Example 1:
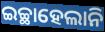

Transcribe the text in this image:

ଇଚ୍ଛାହେଲାନି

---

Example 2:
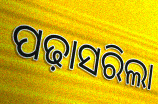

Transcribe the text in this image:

ପଢ଼ାସରିଲା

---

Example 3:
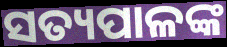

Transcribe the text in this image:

ସତ୍ୟପାଳଙ୍କ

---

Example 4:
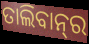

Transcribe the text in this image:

ତାଲିବାନ୍‌ର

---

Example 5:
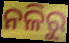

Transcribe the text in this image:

ନଳିରୁ